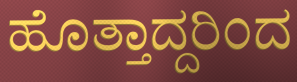
ಹೊತ್ತಾದ್ದರಿಂದ